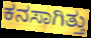
ಕನಸಾಗಿತ್ತು